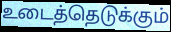
உடைத்தெடுக்கும்